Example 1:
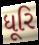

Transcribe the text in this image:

ધૂરિ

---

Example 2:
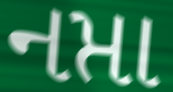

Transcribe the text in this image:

નપ્તા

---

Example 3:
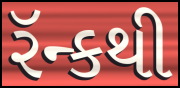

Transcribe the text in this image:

રૅન્કથી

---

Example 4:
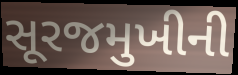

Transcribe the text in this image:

સૂરજમુખીની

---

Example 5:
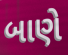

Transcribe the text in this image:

બાણે